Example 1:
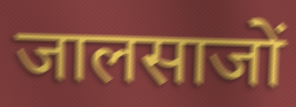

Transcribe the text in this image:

जालसाजों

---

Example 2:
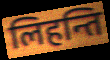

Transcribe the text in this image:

लिहन्ति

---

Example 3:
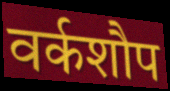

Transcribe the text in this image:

वर्कशौप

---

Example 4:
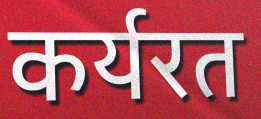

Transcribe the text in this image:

कर्यरत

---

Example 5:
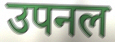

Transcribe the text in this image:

उपनल